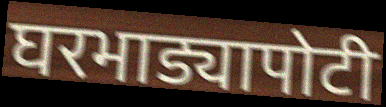
घरभाड्यापोटी